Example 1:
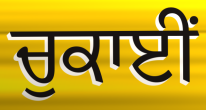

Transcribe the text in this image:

ਚੁਕਾਈਂ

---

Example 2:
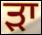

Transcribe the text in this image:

ੜਾ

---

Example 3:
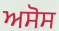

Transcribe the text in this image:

ਅਸੋਸ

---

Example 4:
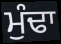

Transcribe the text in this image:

ਮੁੰਢਾ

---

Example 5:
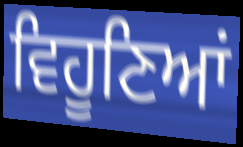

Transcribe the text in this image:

ਵਿਹੂਣਿਆਂ